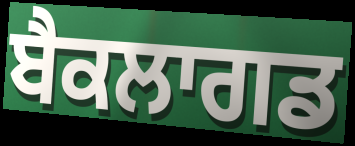
ਬੈਕਲਾਗਡ